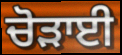
ਚੋੜਾਈ